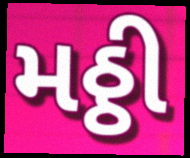
મઠ્ઠી